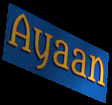
Ayaan